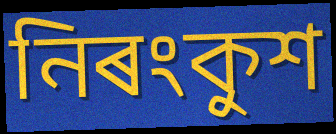
নিৰংকুশ